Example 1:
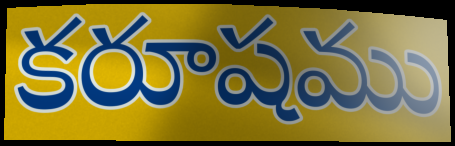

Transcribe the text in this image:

కరూషము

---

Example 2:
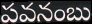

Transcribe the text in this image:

పవనంబు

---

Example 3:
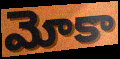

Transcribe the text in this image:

మోకా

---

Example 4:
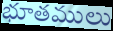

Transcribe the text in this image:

భూతములు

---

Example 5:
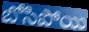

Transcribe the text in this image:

బోసిపోయి